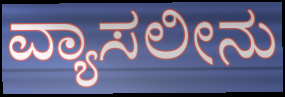
ವ್ಯಾಸಲೀನು